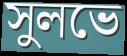
সুলভে